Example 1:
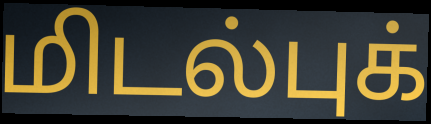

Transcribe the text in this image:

மிடல்புக்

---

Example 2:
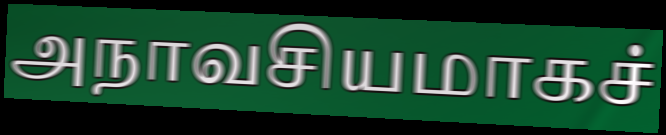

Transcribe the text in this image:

அநாவசியமாகச்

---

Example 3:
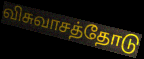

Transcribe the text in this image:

விசுவாசத்தோடு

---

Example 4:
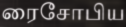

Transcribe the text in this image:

ரைசோபிய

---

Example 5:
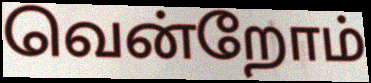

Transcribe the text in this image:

வென்றோம்